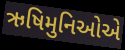
ઋષિમુનિઓએ